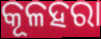
କୂଳହରା